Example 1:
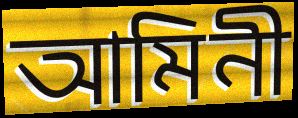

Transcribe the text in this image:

আমিনী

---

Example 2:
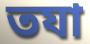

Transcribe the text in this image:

তযা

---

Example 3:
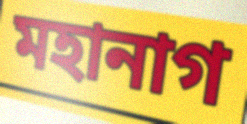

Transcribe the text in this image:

মহানাগ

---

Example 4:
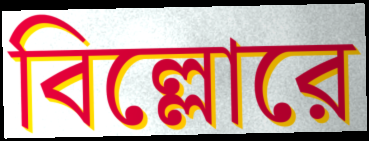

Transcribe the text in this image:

বিল্লোরে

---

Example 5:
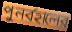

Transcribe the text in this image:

পুনর্বহালের